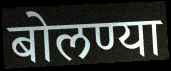
बोलण्या